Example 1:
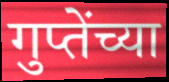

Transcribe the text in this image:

गुप्तेंच्या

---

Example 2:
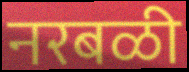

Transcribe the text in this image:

नरबळी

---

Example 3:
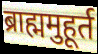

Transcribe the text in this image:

ब्राह्ममुहूर्त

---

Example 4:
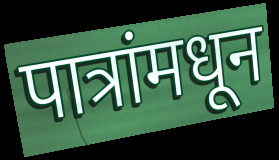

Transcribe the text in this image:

पात्रांमधून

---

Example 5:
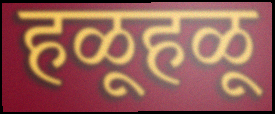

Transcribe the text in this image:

हळूहळू